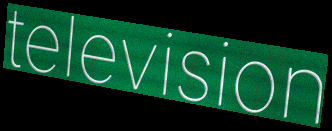
television